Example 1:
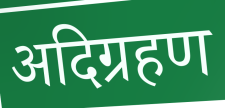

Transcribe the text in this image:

अदिग्रहण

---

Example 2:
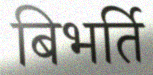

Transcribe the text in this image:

बिभर्ति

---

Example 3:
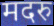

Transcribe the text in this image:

मदरु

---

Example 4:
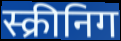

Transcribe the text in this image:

स्क्रीनिग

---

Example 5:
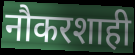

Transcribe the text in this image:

नौकरशाही